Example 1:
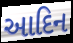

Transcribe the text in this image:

આદિન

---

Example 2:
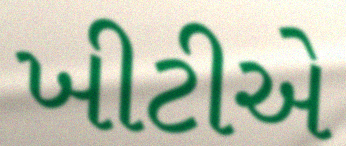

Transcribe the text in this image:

ખીટીએ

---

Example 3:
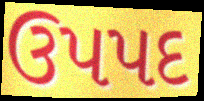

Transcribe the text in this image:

ઉપપદ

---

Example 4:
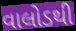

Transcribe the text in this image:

વાલોડથી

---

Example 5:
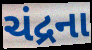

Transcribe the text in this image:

ચંદ્રના